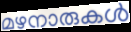
മഴനാരുകൾ